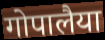
गोपालैया